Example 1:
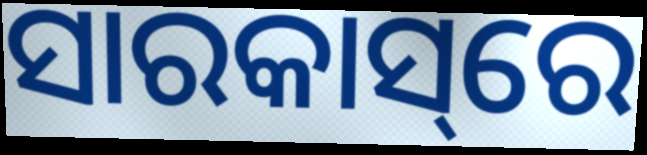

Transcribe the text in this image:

ସାରକାସ୍‌ରେ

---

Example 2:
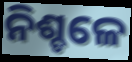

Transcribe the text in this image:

ନିଶ୍ଚଳେ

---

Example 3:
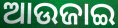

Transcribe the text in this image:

ଆଉଜାଇ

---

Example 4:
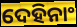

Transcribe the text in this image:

ଦେହିନାଂ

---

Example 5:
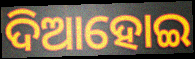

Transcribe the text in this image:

ଦିଆହୋଇ